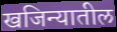
खजिन्यातील